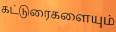
கட்டுரைகளையும்